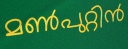
മൺപുറ്റിൻ